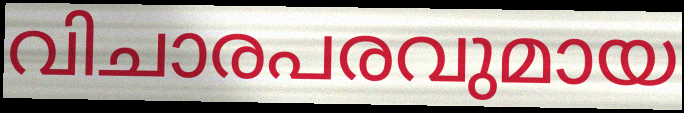
വിചാരപരവുമായ